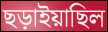
ছড়াইয়াছিল